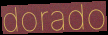
dorado